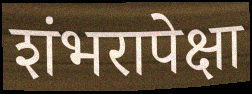
शंभरापेक्षा